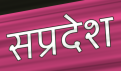
सप्रदेश